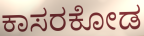
ಕಾಸರಕೋಡ